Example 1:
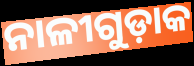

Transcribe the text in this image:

ନାଳୀଗୁଡ଼ାକ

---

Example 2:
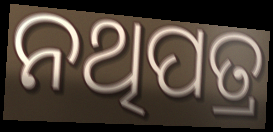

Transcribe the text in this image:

ନଥିପତ୍ର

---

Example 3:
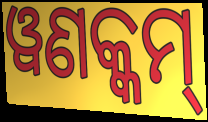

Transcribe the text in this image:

ୱଣକ୍କମ୍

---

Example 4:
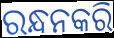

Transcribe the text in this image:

ରନ୍ଧନକରି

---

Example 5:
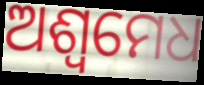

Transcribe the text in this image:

ଅଶ୍ୱମେଧ